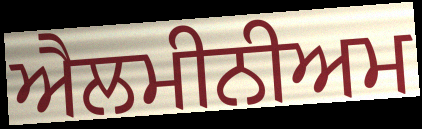
ਐਲਮੀਨੀਅਮ